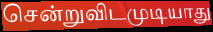
சென்றுவிடமுடியாது